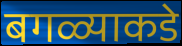
बगळ्याकडे